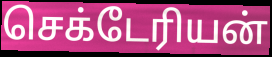
செக்டேரியன்